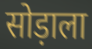
सोड़ाला